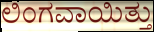
ಲಿಂಗವಾಯಿತ್ತು